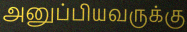
அனுப்பியவருக்கு